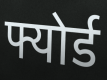
फ्योर्ड